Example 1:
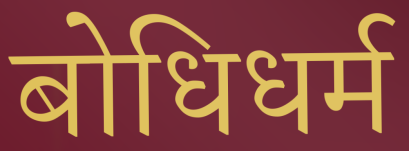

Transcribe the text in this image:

बोधिधर्म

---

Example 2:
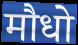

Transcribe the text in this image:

मौधो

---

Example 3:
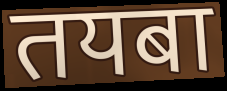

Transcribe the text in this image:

तयबा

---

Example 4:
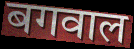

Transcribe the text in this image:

बगवाल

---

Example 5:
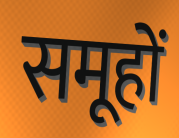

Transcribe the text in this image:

समूहों